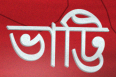
ভাট্টি